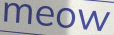
meow